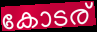
കോടര്